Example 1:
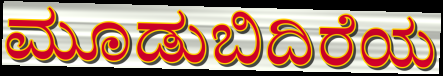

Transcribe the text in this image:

ಮೂಡುಬಿದಿರೆಯ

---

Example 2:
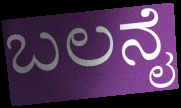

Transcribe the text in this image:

ಬಲನೈ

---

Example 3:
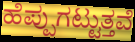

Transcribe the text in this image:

ಹೆಪ್ಪುಗಟ್ಟುತ್ತವೆ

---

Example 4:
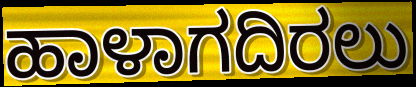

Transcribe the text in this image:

ಹಾಳಾಗದಿರಲು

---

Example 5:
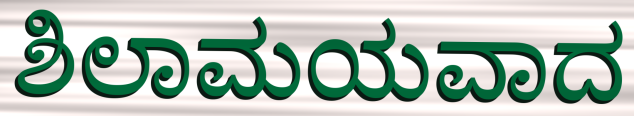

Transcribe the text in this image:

ಶಿಲಾಮಯವಾದ